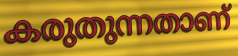
കരുതുന്നതാണ്